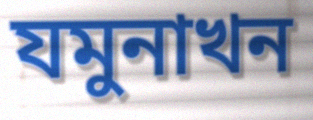
যমুনাখন